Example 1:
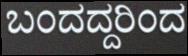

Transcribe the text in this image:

ಬಂದದ್ದರಿಂದ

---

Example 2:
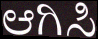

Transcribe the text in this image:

ಆಗಿಸಿ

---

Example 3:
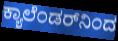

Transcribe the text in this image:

ಕ್ಯಾಲೆಂಡರ್‌ನಿಂದ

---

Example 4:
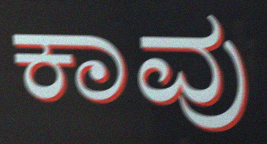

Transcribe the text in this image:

ಕಾವು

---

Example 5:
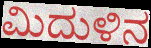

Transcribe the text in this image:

ಮಿದುಳಿನ